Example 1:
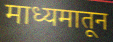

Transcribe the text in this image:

माध्यमातून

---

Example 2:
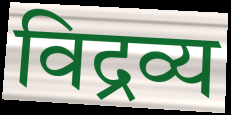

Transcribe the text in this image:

विद्रव्य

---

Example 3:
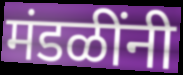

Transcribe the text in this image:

मंडळींनी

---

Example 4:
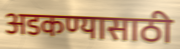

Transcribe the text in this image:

अडकण्यासाठी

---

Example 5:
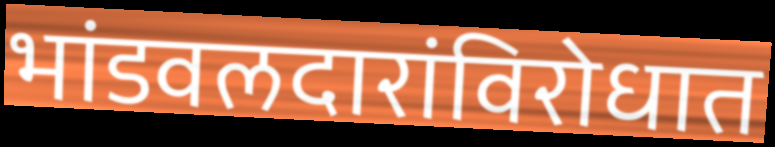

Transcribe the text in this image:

भांडवलदारांविरोधात